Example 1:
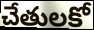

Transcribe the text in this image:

చేతులకో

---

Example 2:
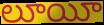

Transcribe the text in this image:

లూయీ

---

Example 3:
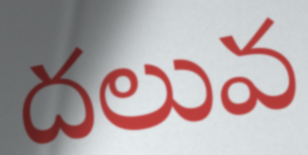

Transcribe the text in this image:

దలువ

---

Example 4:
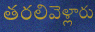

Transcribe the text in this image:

తరలివెళ్లారు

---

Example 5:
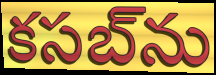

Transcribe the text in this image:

కసబ్‌ను